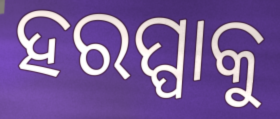
ହରପ୍ପାକୁ